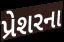
પ્રેશરના